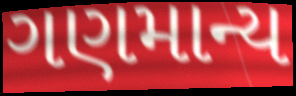
ગણમાન્ય